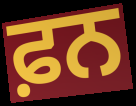
ਫ਼ਨ